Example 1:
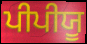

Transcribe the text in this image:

ਪੀਪੀਯੂ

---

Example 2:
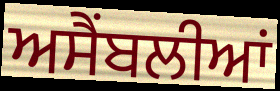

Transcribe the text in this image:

ਅਸੈਂਬਲੀਆਂ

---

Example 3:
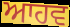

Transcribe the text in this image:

ਆਹਵ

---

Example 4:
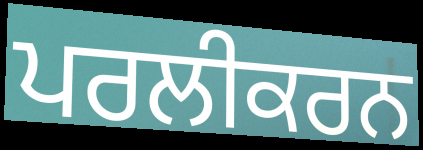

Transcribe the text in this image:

ਪਰਲੀਕਰਨ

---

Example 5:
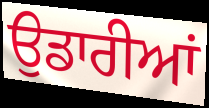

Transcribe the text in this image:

ਉਡਾਰੀਆਂ